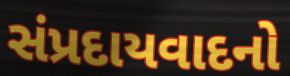
સંપ્રદાયવાદનો